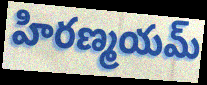
హిరణ్మయమ్